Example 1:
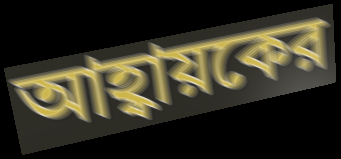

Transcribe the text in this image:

আহ্বায়কের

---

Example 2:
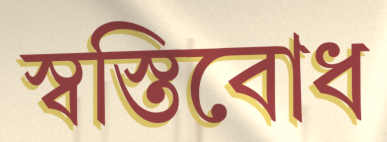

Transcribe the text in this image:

স্বস্তিবোধ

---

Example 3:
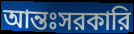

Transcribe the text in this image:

আন্তঃসরকারি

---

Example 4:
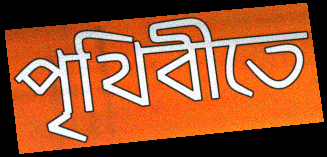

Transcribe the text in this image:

পৃথিবীতে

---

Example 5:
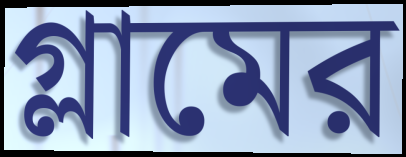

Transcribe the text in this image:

গ্লামের